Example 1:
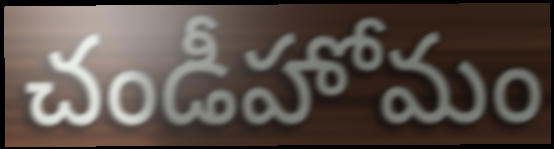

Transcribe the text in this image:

చండీహోమం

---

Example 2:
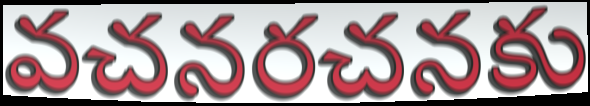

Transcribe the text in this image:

వచనరచనకు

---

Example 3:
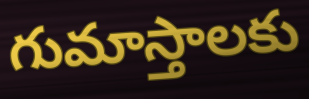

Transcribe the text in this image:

గుమాస్తాలకు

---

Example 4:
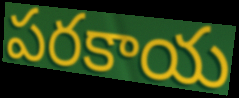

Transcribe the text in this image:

పరకాయ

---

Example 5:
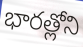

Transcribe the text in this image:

భారత్లోని